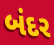
બંદર